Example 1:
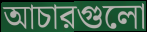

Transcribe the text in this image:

আচারগুলো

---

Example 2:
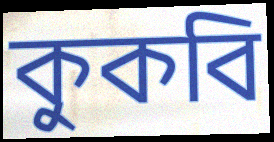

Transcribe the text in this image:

কুকবি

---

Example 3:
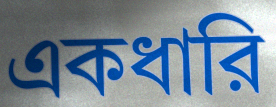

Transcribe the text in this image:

একধারি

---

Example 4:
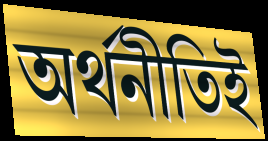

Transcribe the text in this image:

অর্থনীতিই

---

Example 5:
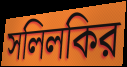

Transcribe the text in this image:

সলিলকির